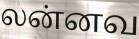
லன்னவ